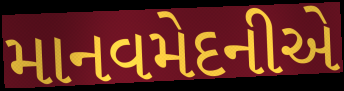
માનવમેદનીએ